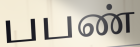
பபண்